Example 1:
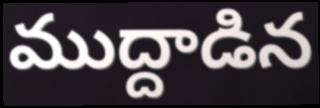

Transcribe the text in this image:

ముద్దాడిన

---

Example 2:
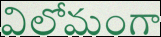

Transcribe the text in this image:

విలోమంగా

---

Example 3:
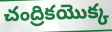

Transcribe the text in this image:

చంద్రికయొక్క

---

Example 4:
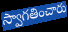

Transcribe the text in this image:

స్వాగతించారు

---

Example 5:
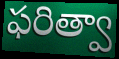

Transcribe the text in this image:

ఫరిత్వా